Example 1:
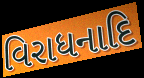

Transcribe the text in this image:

વિરાધનાદિ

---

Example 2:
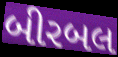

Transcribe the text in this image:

બીરબલ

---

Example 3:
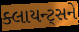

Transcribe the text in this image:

ક્લાયન્ટ્સને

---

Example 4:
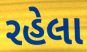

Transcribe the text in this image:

રહેલા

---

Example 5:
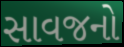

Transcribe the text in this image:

સાવજનો